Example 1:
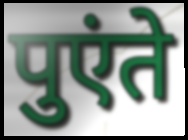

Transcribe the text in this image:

पुएंते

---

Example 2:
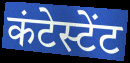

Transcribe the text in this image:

कंटेस्‍टेंट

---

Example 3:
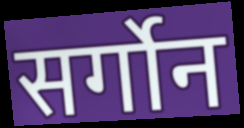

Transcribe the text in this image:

सर्गोन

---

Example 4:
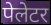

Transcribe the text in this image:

पेलेटर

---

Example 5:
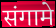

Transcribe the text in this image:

संगामे